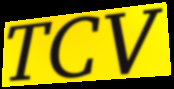
TCV